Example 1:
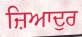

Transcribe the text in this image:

ਜ਼ਿਆਦੁਰ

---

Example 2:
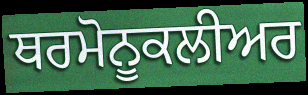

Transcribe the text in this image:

ਥਰਮੋਨੂਕਲੀਅਰ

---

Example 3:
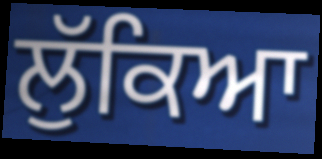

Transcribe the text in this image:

ਲੁੱਕਿਆ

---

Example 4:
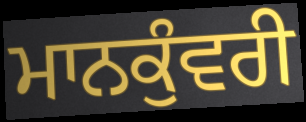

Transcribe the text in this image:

ਮਾਨਕੁੰਵਰੀ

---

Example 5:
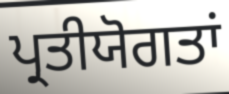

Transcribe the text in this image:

ਪ੍ਰਤੀਯੋਗਤਾਂ